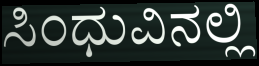
ಸಿಂಧುವಿನಲ್ಲಿ